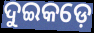
ଦୁଇକଡ଼େ